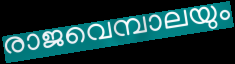
രാജവെമ്പാലയും